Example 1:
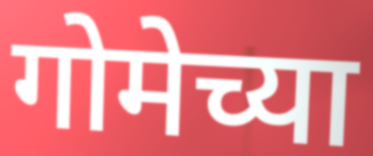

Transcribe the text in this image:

गोमेच्या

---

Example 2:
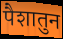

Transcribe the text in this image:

पैशातुन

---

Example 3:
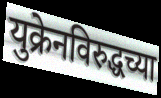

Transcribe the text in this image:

युक्रेनविरुद्धच्या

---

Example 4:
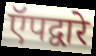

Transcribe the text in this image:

ऍपद्वारे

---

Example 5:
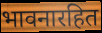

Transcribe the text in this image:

भावनारहित